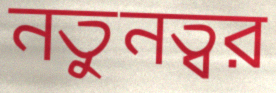
নতুনত্বর